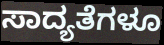
ಸಾದ್ಯತೆಗಳೂ